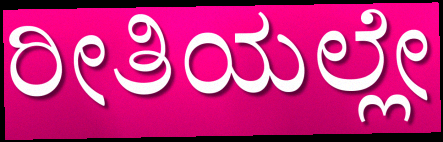
ರೀತಿಯಲ್ಲೇ